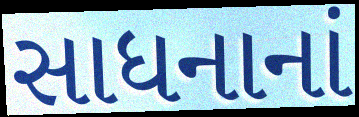
સાધનાનાં